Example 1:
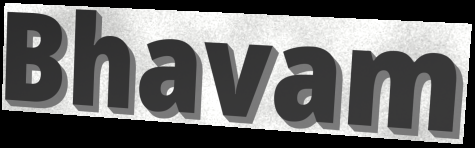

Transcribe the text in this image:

Bhavam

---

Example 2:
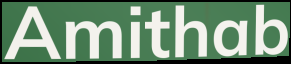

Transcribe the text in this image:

Amithab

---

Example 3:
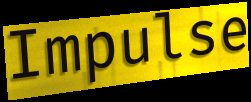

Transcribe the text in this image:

Impulse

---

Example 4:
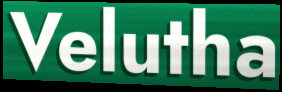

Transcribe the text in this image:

Velutha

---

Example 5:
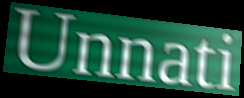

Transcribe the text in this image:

Unnati